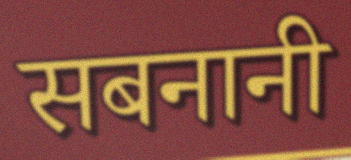
सबनानी